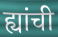
ह्यांची